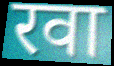
रवा